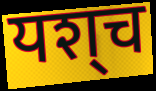
यश्च